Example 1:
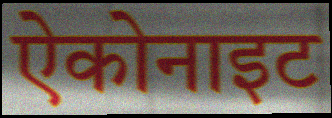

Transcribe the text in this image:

ऐकोनाइट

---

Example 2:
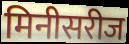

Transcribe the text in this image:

मिनीसरीज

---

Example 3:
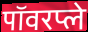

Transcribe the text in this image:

पॉवरप्ले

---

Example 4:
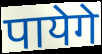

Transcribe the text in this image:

पायेगे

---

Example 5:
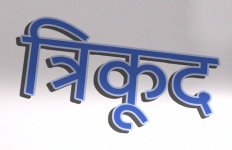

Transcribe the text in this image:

त्रिकूद